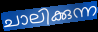
ചാലിക്കുന്ന